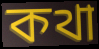
কথা